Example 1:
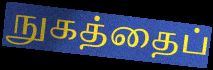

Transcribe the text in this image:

நுகத்தைப்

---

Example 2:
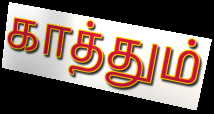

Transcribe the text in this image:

காத்தும்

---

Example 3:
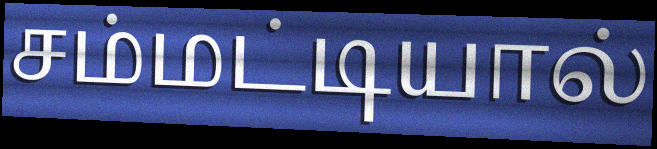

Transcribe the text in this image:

சம்மட்டியால்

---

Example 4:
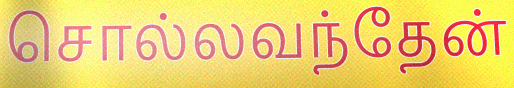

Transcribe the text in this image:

சொல்லவந்தேன்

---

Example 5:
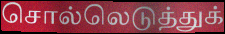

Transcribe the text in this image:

சொல்லெடுத்துக்